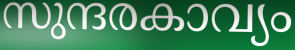
സുന്ദരകാവ്യം